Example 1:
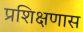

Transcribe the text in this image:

प्रशिक्षणास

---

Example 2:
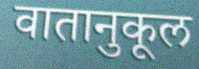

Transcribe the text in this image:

वातानुकूल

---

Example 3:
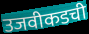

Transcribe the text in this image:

उजवीकडची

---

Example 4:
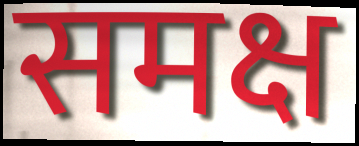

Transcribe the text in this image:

समक्ष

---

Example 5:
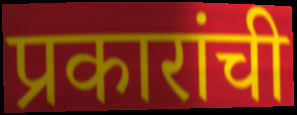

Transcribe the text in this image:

प्रकारांची